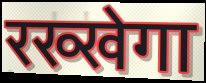
रख्खेगा